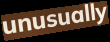
unusually